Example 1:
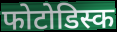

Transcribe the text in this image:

फोटोडिस्क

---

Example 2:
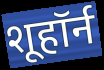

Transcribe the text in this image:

शूहॉर्न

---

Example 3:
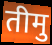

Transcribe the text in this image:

तीमु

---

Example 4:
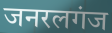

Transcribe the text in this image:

जनरलगंज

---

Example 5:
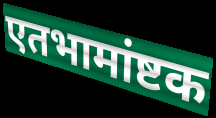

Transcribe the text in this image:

एतभामांष्टक